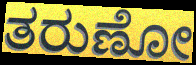
ತರುಣೋ